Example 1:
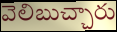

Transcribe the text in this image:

వెలిబుచ్చారు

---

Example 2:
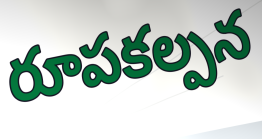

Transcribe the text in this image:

రూపకల్పన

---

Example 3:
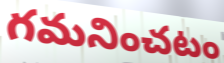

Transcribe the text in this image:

గమనించటం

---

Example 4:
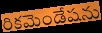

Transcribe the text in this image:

రికమెండేషను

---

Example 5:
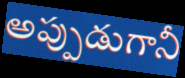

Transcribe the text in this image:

అప్పుడుగానీ